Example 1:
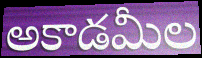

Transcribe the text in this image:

అకాడమీల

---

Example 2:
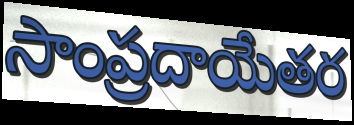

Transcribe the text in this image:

సాంప్రదాయేతర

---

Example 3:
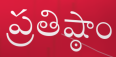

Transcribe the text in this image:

ప్రతిష్ఠాం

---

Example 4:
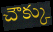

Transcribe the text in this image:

చౌక్కు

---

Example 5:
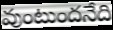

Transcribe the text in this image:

వుంటుందనేది